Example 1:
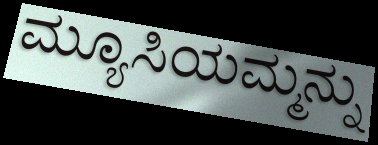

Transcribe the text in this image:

ಮ್ಯೂಸಿಯಮ್ಮನ್ನು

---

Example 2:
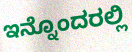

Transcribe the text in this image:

ಇನ್ನೊಂದರಲ್ಲಿ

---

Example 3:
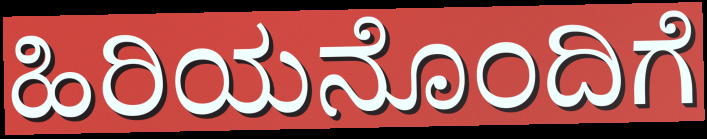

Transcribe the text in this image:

ಹಿರಿಯನೊಂದಿಗೆ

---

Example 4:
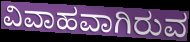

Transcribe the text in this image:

ವಿವಾಹವಾಗಿರುವ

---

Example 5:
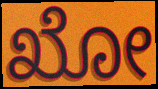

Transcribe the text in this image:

ಖೋ